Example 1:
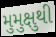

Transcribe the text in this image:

મુમુક્ષુથી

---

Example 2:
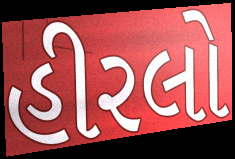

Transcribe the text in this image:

હીરલો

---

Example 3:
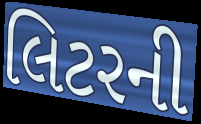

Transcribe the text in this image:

લિટરની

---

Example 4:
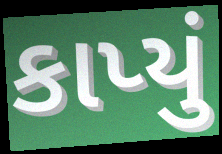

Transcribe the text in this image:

કાપ્યું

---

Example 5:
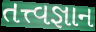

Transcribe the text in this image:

તત્ત્વજ્ઞાન